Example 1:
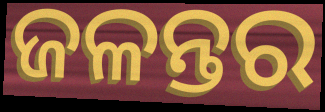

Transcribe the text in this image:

ଜଳନ୍ତର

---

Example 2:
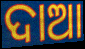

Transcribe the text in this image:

ଦାଆ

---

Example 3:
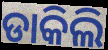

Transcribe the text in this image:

ଡାକିଲି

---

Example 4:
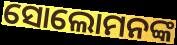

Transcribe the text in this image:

ସୋଲୋମନଙ୍କ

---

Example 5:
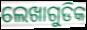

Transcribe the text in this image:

ଲେଖାଗୁଡିକ